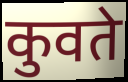
कुवते